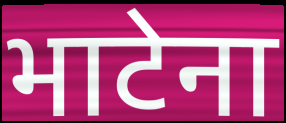
भाटेना